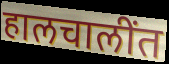
हालचालींत